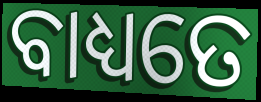
ବାଧ୍ଯତେ